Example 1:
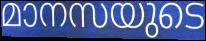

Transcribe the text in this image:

മാനസയുടെ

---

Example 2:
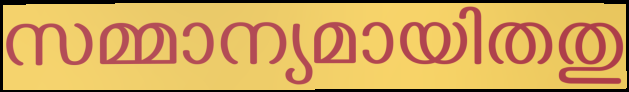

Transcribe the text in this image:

സമ്മാന്യമായിതതു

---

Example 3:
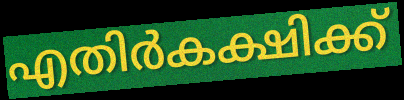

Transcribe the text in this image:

എതിർകക്ഷിക്ക്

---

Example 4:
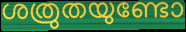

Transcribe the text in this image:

ശത്രുതയുണ്ടോ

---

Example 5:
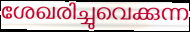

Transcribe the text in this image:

ശേഖരിച്ചുവെക്കുന്ന